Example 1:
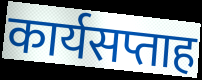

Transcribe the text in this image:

कार्यसप्ताह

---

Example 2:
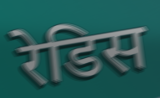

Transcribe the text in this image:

रेडिस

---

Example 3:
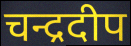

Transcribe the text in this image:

चन्द्रदीप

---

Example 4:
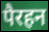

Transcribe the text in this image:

पैरहन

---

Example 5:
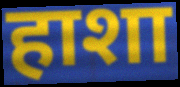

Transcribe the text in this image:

हाशा